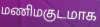
மணிமகுடமாக